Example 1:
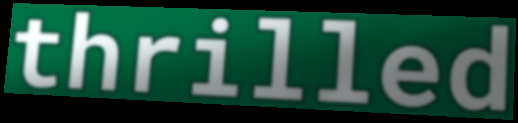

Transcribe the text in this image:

thrilled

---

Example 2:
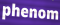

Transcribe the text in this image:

phenom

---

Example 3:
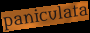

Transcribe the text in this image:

paniculata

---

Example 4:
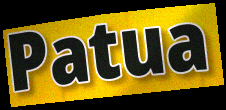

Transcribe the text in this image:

Patua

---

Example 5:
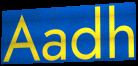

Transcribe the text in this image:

Aadh